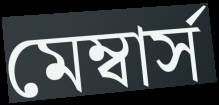
মেম্বার্স